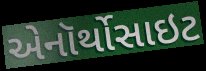
એનૉર્થોસાઇટ